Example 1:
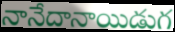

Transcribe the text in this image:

నానేదానాయిడుగ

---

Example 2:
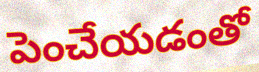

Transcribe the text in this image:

పెంచేయడంతో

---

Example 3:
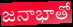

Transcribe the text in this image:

జనాభాతో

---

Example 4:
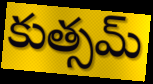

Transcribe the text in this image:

కుత్సమ్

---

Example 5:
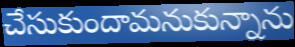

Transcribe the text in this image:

చేసుకుందామనుకున్నాను